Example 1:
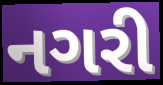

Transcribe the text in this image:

નગરી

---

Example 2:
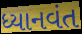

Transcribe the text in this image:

ધ્યાનવંત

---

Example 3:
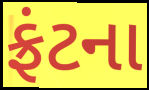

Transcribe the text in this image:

ફ્રંટના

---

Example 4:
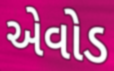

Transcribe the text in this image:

એવોડ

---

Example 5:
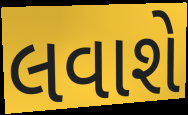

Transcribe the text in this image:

લવાશે